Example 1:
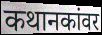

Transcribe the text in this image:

कथानकांवर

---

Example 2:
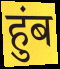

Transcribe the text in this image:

हुंब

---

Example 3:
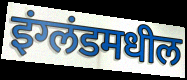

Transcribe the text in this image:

इंग्‍लंडमधील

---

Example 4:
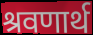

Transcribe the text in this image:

श्रवणार्थ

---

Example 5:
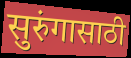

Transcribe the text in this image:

सुरुंगासाठी